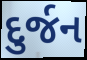
દુર્જન